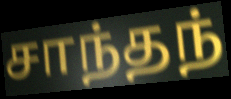
சாந்தந்